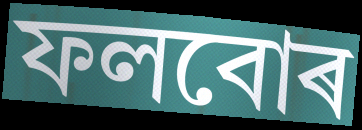
ফলবোৰ